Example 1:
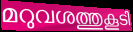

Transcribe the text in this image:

മറുവശത്തുകൂടി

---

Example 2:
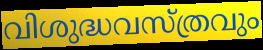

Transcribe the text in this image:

വിശുദ്ധവസ്ത്രവും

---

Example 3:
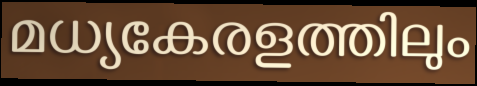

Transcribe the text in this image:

മധ്യകേരളത്തിലും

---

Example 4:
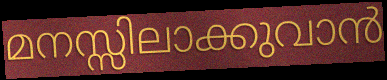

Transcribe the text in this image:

മനസ്സിലാക്കുവാൻ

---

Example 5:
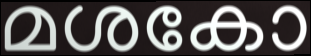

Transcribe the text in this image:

മശകോ